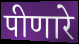
पीणारे